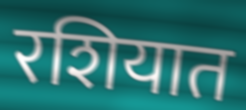
रशियात